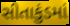
સીતાકુંડમાં